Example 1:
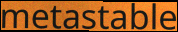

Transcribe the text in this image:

metastable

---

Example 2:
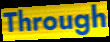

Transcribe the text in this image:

Through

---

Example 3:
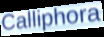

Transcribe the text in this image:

Calliphora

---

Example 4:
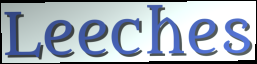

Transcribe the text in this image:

Leeches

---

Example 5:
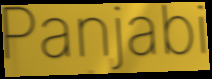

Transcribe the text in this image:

Panjabi